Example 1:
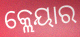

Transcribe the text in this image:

କ୍ଲେୟାର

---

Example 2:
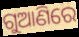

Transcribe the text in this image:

ଗୁଆଣିରେ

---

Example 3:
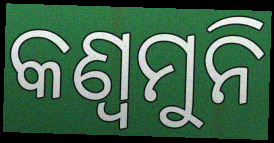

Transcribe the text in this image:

କଣ୍ୱମୁନି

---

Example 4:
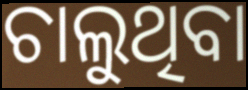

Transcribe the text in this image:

ଚାଲୁଥିବା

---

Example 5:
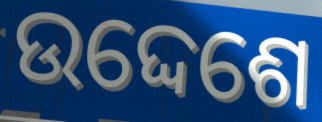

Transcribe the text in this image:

ଉଦ୍ଦେଶେ